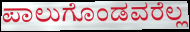
ಪಾಲುಗೊಂಡವರೆಲ್ಲ